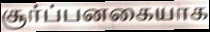
சூர்ப்பனகையாக